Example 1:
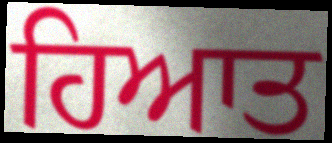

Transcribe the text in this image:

ਹਿਆਤ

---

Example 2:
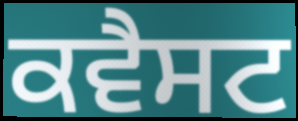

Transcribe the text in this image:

ਕਵੈਸਟ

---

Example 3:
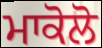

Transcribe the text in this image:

ਮਾਕੋਲੋ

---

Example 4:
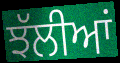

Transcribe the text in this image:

ਝੱਲੀਆਂ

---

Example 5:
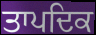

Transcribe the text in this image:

ਤਾਪਦਿਕ